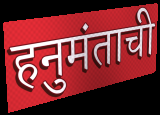
हनुमंताची